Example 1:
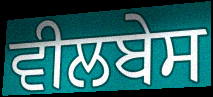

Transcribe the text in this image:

ਵੀਲਬੇਸ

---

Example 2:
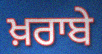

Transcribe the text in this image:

ਖ਼ਰਾਬੇ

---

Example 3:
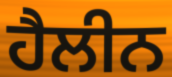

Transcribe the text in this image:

ਹੈਲੀਨ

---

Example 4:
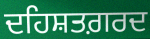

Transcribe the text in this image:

ਦਹਿਸ਼ਤਗ਼ਰਦ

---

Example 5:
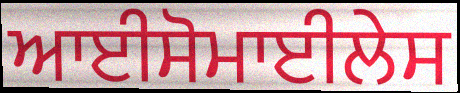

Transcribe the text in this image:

ਆਈਸੋਮਾਈਲੇਸ